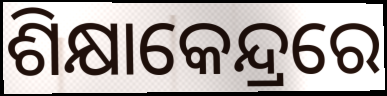
ଶିକ୍ଷାକେନ୍ଦ୍ରରେ